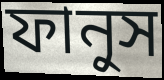
ফানুস